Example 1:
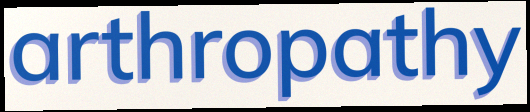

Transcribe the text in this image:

arthropathy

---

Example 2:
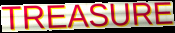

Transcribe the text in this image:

TREASURE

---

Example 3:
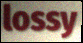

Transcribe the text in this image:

lossy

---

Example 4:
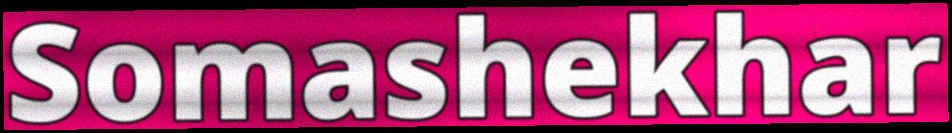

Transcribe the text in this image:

Somashekhar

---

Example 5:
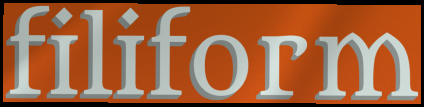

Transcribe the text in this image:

filiform